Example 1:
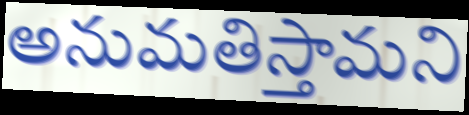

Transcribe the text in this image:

అనుమతిస్తామని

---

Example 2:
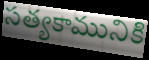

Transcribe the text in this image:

సత్యకామునికి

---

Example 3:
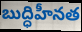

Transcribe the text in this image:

బుద్ధిహీనత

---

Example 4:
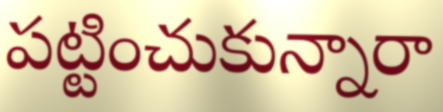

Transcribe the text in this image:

పట్టించుకున్నారా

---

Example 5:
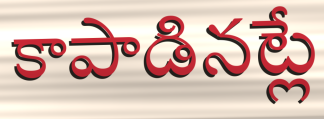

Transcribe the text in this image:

కాపాడినట్లే